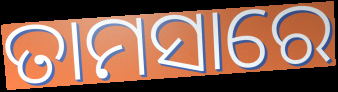
ତାମସାରେ